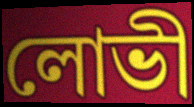
লোভী